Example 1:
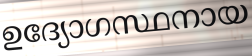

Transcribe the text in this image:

ഉദ്യോഗസ്ഥനായ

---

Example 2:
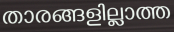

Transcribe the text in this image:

താരങ്ങളില്ലാത്ത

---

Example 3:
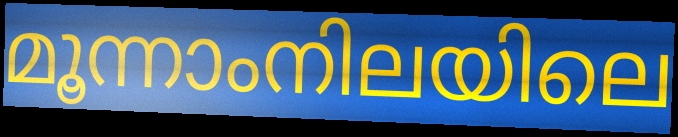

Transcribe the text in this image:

മൂന്നാംനിലയിലെ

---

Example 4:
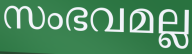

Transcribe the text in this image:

സംഭവമല്ല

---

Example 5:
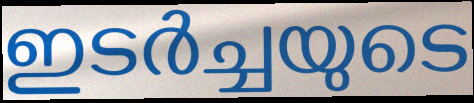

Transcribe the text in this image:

ഇടർച്ചയുടെ